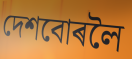
দেশবোৰলৈ